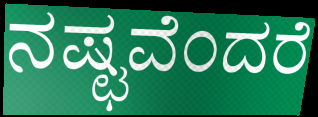
ನಷ್ಟವೆಂದರೆ